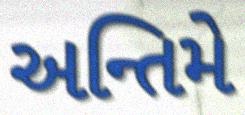
અન્તિમે